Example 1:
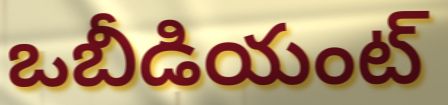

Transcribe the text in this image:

ఒబీడియంట్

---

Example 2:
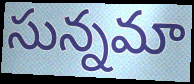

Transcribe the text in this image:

సున్నమా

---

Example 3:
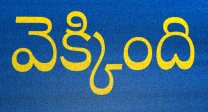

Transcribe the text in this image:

వెక్కింది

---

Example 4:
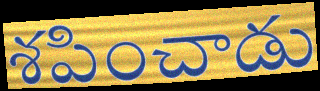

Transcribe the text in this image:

శపించాడు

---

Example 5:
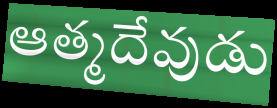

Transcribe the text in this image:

ఆత్మదేవుడు